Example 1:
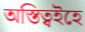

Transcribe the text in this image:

অস্তিত্বইহে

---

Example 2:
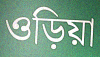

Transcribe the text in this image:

ওড়িয়া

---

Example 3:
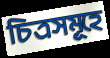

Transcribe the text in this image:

চিত্ৰসমূহে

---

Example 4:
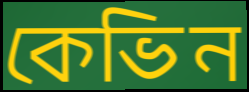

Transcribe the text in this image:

কেভিন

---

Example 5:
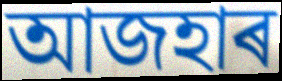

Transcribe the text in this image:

আজহাৰ